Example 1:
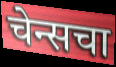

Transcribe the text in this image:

चेन्सचा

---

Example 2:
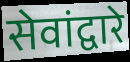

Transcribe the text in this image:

सेवांद्वारे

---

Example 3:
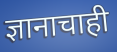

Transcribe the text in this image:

ज्ञानाचाही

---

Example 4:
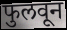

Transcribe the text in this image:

फुलवून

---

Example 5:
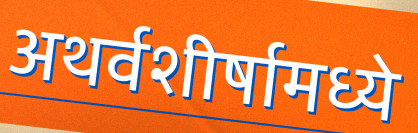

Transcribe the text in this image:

अथर्वशीर्षामध्ये